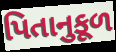
પિતાનુકૂળ